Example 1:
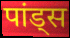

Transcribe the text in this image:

पांड्स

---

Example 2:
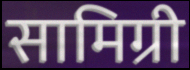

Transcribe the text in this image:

सामिग्री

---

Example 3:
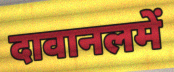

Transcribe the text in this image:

दावानलमें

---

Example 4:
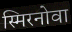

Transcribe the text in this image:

स्मिरनोवा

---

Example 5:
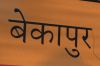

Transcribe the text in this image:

बेकापुर